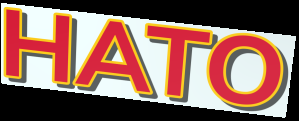
HATO